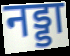
नड्डा